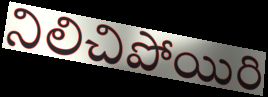
నిలిచిపోయిరి